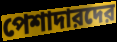
পেশাদারদের